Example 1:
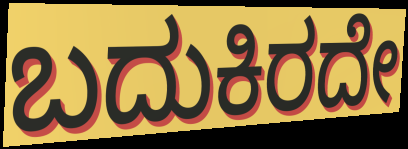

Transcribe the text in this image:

ಬದುಕಿರದೇ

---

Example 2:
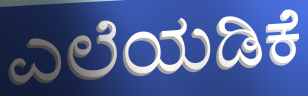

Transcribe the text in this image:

ಎಲೆಯಡಿಕೆ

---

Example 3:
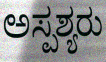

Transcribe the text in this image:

ಅಸ್ಪಶ್ಯರು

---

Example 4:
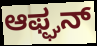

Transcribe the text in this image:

ಆಫ್ಘನ್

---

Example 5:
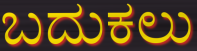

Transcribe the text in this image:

ಬದುಕಲು